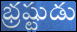
భ్రష్టుడు